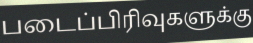
படைப்பிரிவுகளுக்கு